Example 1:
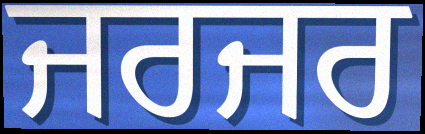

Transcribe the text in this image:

ਜਰਜਰ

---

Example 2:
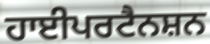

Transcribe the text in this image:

ਹਾਈਪਰਟੈਨਸ਼ਨ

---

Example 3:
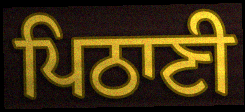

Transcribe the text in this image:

ਪਿਠਾਣੀ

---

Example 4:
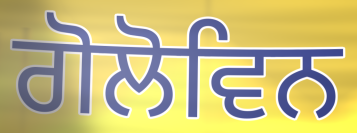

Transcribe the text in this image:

ਗੋਲੋਵਿਨ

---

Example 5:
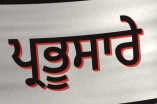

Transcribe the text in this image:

ਪ੍ਰਭੂਸਾਰੇ